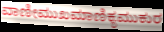
ವಾಣೀಮುಖಮಾಣಿಕ್ಯಮುಕುರ